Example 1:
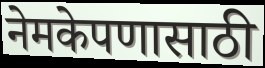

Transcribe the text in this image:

नेमकेपणासाठी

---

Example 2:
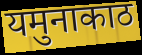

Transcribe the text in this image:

यमुनाकाठ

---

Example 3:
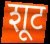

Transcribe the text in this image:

शूट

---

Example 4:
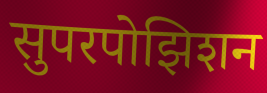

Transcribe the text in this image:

सुपरपोझिशन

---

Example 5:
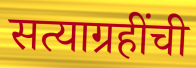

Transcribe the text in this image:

सत्याग्रहींची